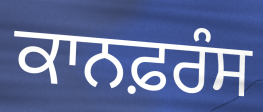
ਕਾਨਫ਼ਰੰਸ